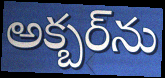
అక్బర్‌ను